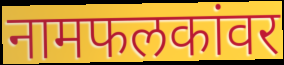
नामफलकांवर